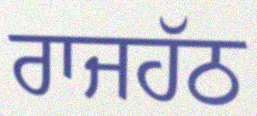
ਰਾਜਹੱਠ